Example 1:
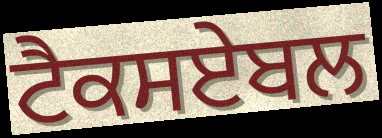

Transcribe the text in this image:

ਟੈਕਸਏਬਲ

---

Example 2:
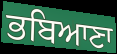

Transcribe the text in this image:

ਭਬਿਆਣਾ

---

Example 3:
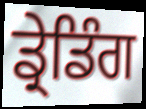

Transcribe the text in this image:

ਡ੍ਰੇਡਿੰਗ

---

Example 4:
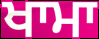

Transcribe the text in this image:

ਖਾਮਾ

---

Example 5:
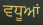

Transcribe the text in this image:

ਵਧੂਆਂ